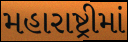
મહારાષ્ટ્રીમાં